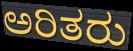
ಅರಿತರು